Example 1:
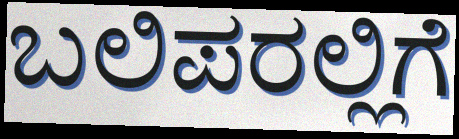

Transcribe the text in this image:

ಬಲಿಪರಲ್ಲಿಗೆ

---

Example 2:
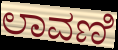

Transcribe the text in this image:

ಲಾವಣಿ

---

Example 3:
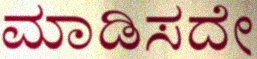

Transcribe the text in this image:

ಮಾಡಿಸದೇ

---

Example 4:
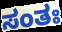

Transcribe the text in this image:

ಸಂತಃ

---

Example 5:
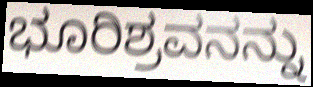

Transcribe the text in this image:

ಭೂರಿಶ್ರವನನ್ನು